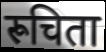
रूचिता